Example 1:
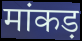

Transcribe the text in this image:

मांकड़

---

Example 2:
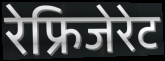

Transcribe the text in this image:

रेफ्रिजेरेट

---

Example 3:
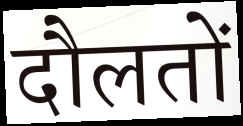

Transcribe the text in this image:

दौलतों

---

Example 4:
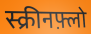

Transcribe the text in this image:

स्क्रीनफ़्लो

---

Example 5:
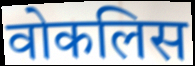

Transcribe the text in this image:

वोकलिस